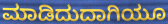
ಮಾಡಿದುದಾಗಿಯೂ